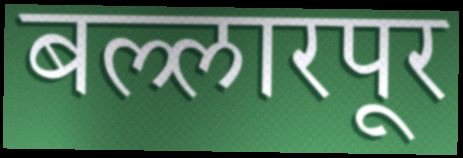
बल्लारपूर